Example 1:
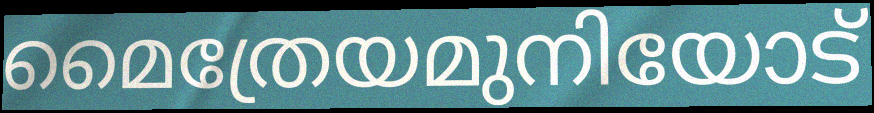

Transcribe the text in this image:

മൈത്രേയമുനിയോട്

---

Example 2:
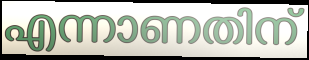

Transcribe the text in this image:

എന്നാണതിന്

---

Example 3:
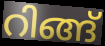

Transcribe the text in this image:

റിങ്ങ്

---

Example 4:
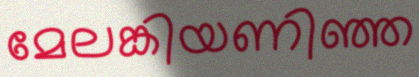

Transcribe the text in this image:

മേലങ്കിയണിഞ്ഞ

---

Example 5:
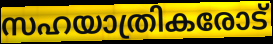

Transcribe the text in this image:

സഹയാത്രികരോട്